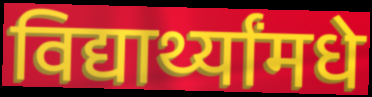
विद्यार्थ्यांमधे